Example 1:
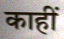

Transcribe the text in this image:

काहीं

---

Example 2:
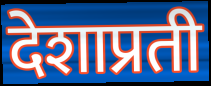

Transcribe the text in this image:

देशाप्रती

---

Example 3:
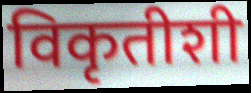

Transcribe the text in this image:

विकृतीशी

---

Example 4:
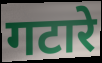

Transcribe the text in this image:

गटारे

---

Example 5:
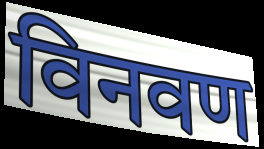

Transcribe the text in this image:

विनवण